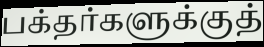
பக்தர்களுக்குத்